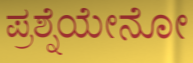
ಪ್ರಶ್ನೆಯೇನೋ